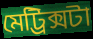
মেট্রিক্সটা